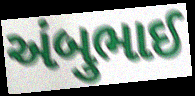
અંબુભાઈ